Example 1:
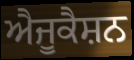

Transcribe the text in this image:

ਐਜੂਕੈਸ਼ਨ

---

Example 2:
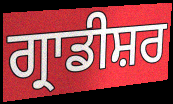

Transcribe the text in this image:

ਗ੍ਰਾਡੀਸ਼ਰ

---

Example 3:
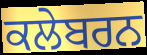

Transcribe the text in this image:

ਕਲੇਬਰਨ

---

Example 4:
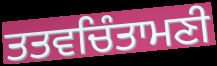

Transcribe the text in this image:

ਤਤਵਚਿੰਤਾਮਣੀ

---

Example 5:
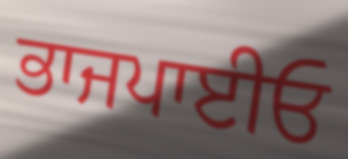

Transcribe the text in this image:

ਭਾਜਪਾਈਓ